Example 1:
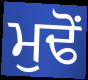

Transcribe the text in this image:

ਮੁਢੋਂ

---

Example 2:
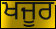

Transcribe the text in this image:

ਖਜੂਰ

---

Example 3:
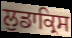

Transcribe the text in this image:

ਲੁਡਾਕ੍ਰਿਸ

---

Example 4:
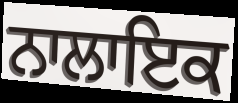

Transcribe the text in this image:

ਨਾਲਾਇਕ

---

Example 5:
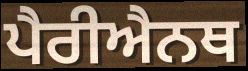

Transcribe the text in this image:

ਪੈਰੀਐਨਥ